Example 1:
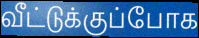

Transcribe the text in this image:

வீட்டுக்குப்போக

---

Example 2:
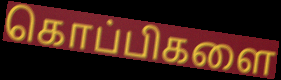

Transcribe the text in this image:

கொப்பிகளை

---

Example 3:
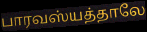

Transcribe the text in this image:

பாரவஸ்யத்தாலே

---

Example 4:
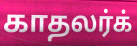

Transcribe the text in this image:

காதலர்க்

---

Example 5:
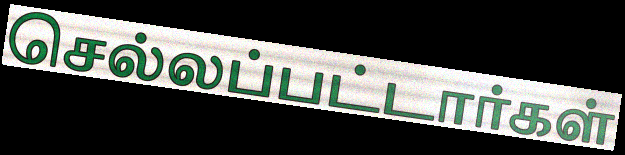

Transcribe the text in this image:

செல்லப்பட்டார்கள்